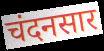
चंदनसार